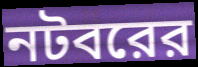
নটবরের